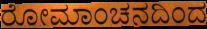
ರೋಮಾಂಚನದಿಂದ